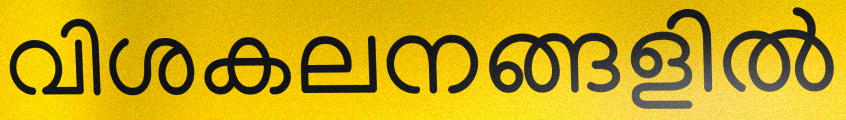
വിശകലനങ്ങളിൽ